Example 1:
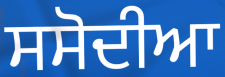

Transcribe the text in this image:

ਸਸੋਦੀਆ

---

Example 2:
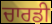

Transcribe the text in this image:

ਚਾਰਡੀ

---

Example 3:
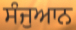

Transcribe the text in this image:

ਸੰਜੁਆਨ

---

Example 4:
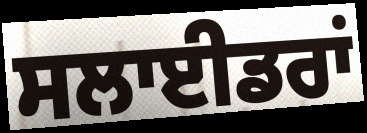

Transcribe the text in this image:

ਸਲਾਈਡਰਾਂ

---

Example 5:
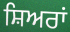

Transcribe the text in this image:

ਸ਼ਿਅਰਾਂ